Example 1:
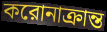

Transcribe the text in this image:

করোনাক্রান্ত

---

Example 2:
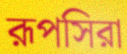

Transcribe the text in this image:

রূপসিরা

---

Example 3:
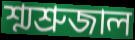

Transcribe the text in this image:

শ্মশ্রুজাল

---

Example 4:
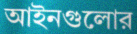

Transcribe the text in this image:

আইনগুলোর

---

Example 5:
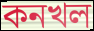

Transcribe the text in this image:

কনখল